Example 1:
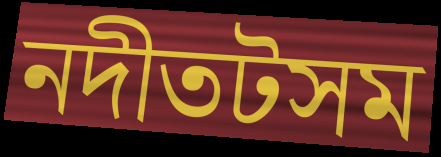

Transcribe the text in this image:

নদীতটসম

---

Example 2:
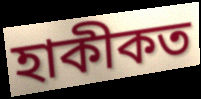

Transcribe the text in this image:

হাকীকত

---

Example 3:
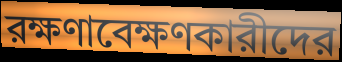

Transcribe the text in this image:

রক্ষণাবেক্ষণকারীদের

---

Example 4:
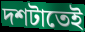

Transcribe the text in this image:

দশটাতেই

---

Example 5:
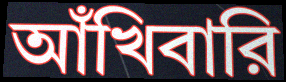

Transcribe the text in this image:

আঁখিবারি